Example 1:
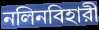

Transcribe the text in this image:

নলিনবিহারী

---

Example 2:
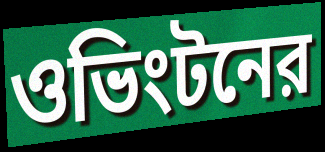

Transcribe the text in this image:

ওভিংটনের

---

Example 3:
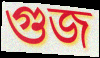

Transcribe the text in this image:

গুজ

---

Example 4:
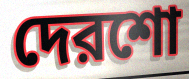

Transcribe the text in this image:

দেরশো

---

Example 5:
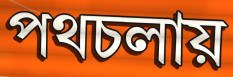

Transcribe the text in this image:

পথচলায়